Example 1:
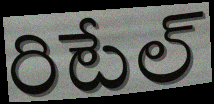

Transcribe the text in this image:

రిటేల్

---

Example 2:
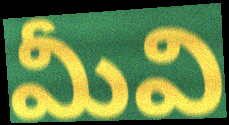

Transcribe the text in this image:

మీవి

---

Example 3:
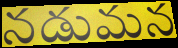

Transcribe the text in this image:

నడుమన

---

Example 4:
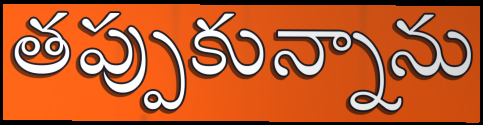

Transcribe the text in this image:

తప్పుకున్నాను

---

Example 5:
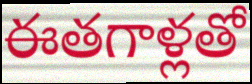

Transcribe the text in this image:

ఈతగాళ్లతో